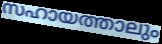
സഹായത്താലും